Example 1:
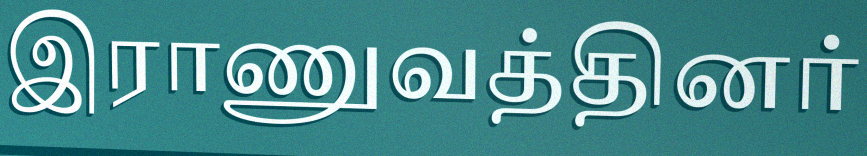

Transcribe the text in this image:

இராணுவத்தினர்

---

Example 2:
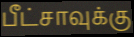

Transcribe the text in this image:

பீட்சாவுக்கு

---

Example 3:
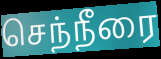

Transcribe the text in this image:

செந்நீரை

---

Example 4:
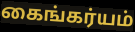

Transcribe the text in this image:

கைங்கர்யம்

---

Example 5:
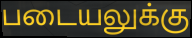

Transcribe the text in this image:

படையலுக்கு